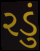
રડું